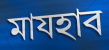
মাযহাব